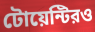
টোয়েন্টিরও